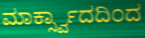
ಮಾರ್ಕ್ಸ್ವಾದದಿಂದ